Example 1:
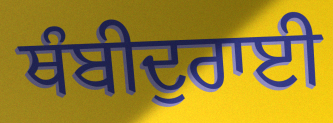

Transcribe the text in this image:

ਥੰਬੀਦੁਰਾਈ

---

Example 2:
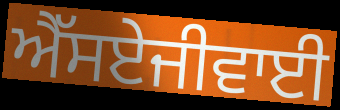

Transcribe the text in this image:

ਐੱਸਏਜੀਵਾਈ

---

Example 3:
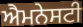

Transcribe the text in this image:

ਐਮਨੇਸਟੀ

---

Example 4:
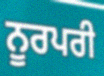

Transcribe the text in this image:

ਨੂਰਪਰੀ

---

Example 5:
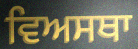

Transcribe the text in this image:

ਵਿਅਸਥਾ